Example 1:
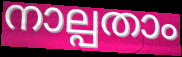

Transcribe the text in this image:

നാല്പതാം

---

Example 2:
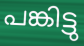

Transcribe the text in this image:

പങ്കിട്ടു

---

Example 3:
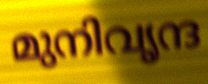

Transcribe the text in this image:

മുനിവൃന്ദ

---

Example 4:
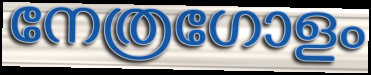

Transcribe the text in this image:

നേത്രഗോളം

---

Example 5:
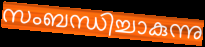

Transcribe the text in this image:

സംബന്ധിച്ചാകുന്നു